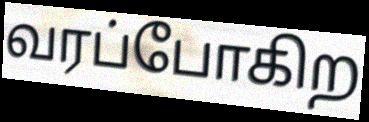
வரப்போகிற